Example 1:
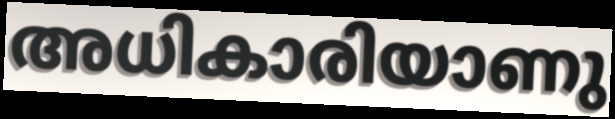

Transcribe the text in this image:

അധികാരിയാണു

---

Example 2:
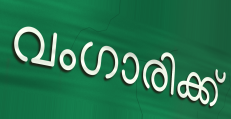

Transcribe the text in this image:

വംഗാരിക്ക്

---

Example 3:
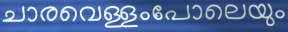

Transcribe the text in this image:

ചാരവെള്ളംപോലെയും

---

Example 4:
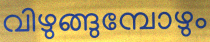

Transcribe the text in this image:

വിഴുങ്ങുമ്പോഴും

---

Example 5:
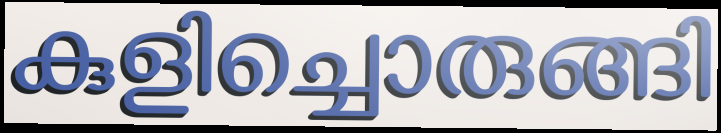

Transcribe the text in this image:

കുളിച്ചൊരുങ്ങി